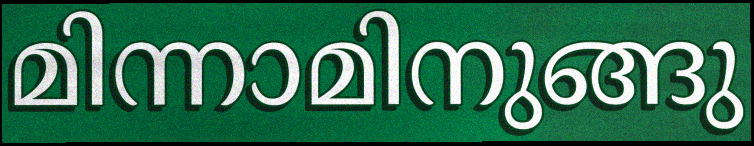
മിന്നാമിനുങ്ങു